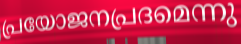
പ്രയോജനപ്രദമെന്നു